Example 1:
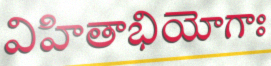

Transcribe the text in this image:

విహితాభియోగాః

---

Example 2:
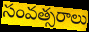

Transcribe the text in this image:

సంవత్సరాలు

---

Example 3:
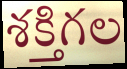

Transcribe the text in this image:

శక్తిగల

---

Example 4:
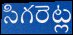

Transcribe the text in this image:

సిగరెట్ల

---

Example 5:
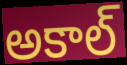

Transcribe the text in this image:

అకాల్